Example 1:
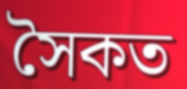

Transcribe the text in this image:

সৈকত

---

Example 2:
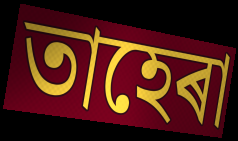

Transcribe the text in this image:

তাহেৰা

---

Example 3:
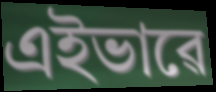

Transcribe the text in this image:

এইভাৱে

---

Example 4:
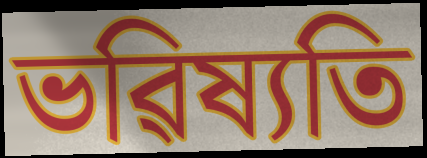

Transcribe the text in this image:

ভৱিষ্যতি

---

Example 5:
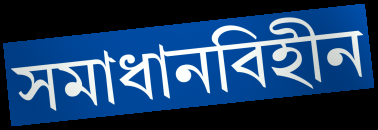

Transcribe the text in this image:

সমাধানবিহীন